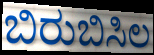
ಬಿರುಬಿಸಿಲ